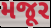
મજૂર